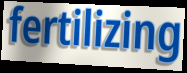
fertilizing